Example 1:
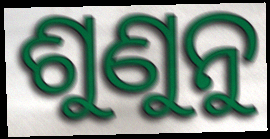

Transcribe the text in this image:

ଶୁଣୁନୁ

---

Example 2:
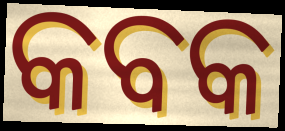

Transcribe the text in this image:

କବକ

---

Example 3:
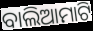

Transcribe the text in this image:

ବାଲିଆମାଟି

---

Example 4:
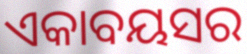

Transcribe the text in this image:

ଏକାବୟସର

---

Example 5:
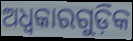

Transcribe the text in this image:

ଅଧ୍ବକାରଗୁଡ଼ିକ